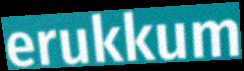
erukkum